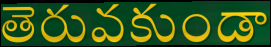
తెరువకుండా